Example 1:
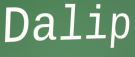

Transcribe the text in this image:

Dalip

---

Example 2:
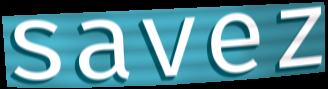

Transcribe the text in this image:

savez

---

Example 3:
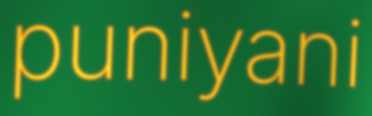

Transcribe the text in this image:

puniyani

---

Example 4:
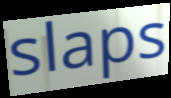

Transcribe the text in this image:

slaps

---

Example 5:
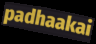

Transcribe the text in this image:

padhaakai